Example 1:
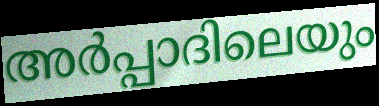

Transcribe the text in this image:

അർപ്പാദിലെയും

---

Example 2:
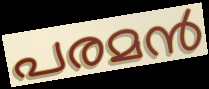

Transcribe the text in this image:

പരമൻ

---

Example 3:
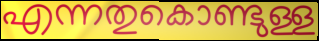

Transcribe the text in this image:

എന്നതുകൊണ്ടുള്ള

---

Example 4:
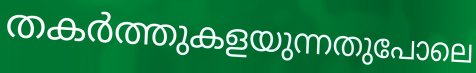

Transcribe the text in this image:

തകർത്തുകളയുന്നതുപോലെ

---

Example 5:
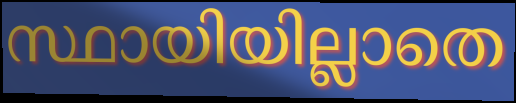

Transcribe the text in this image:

സ്ഥായിയില്ലാതെ